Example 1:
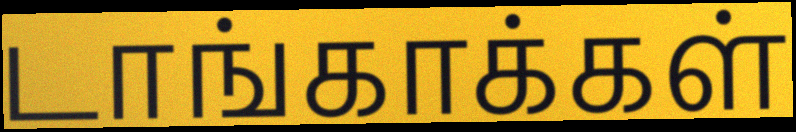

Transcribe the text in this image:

டாங்காக்கள்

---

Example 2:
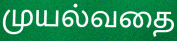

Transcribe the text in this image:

முயல்வதை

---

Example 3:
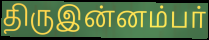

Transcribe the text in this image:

திருஇன்னம்பர்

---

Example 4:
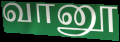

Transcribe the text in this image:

வானூ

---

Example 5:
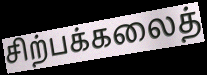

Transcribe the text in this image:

சிற்பக்கலைத்